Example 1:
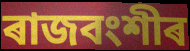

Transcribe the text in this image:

ৰাজবংশীৰ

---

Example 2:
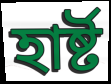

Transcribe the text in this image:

হাৰ্ষ্ট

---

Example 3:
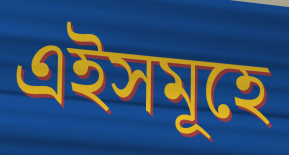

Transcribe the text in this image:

এইসমূহে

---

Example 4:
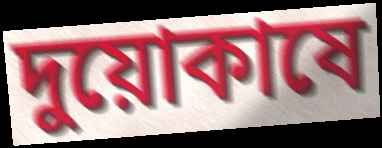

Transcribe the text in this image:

দুয়োকাষে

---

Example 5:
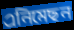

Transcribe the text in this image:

এনিমেছন